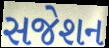
સજેશન